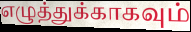
எழுத்துக்காகவும்